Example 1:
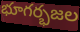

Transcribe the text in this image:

భూగర్భజల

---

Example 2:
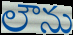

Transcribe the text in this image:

లౌను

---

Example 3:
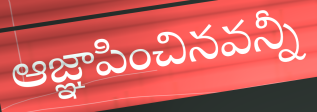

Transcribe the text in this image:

ఆజ్ఞాపించినవన్నీ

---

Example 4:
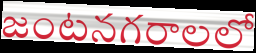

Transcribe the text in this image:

జంటనగరాలలో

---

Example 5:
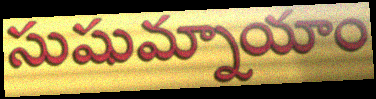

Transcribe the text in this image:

సుషుమ్నాయాం